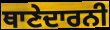
ਥਾਣੇਦਾਰਨੀ